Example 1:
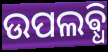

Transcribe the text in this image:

ଉପଲଵ୍ଧି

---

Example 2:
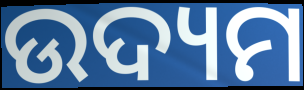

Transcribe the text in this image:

ଉଦ୍ୟମ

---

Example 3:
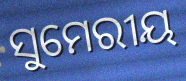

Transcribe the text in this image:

ସୁମେରୀୟ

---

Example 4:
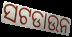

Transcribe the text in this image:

ସଟଡାଉନ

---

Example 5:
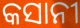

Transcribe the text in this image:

କସାନୀ